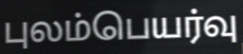
புலம்பெயர்வு